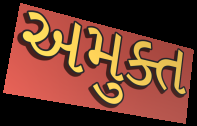
અમુક્ત